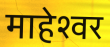
माहेश्वर